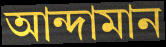
আন্দামান